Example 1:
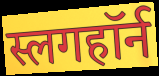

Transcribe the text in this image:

स्लगहॉर्न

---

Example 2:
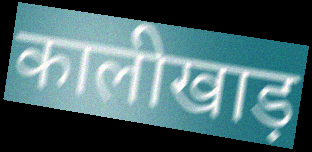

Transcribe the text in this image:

कालीखाड़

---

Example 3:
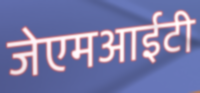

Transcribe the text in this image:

जेएमआईटी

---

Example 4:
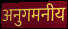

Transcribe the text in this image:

अनुगमनीय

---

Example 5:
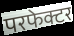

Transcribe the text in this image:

परफेक्टर